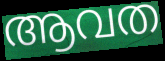
ആവത